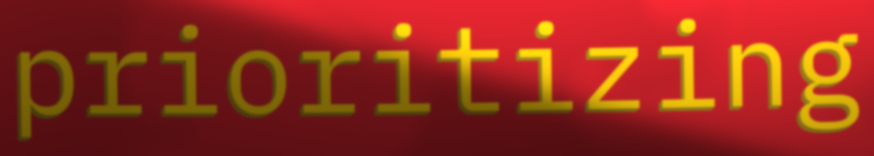
prioritizing